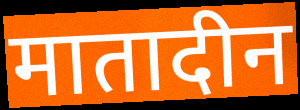
मातादीन